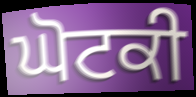
ਘੋਟਕੀ